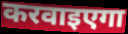
करवाइएगा